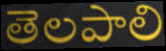
తెలపాలి